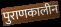
पुराणकालीन